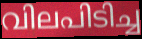
വിലപിടിച്ച